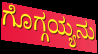
ಗೊಗ್ಗಯ್ಯನು